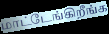
மாட்டேங்கிறீங்க